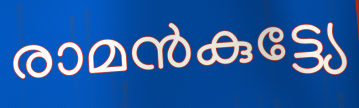
രാമൻകുട്ട്യേ